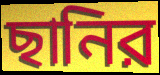
ছানির